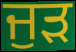
ਜੁੜ